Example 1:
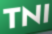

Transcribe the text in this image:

TNI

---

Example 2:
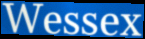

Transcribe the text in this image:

Wessex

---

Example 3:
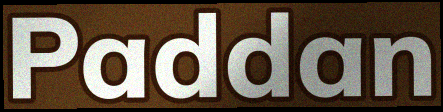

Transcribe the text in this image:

Paddan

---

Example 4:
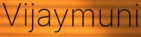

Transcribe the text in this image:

Vijaymuni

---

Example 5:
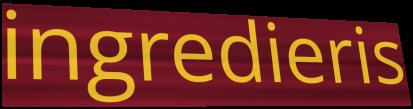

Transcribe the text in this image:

ingredieris